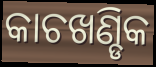
କାଚଖଣ୍ଡିକ